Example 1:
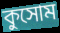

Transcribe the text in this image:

কুসোম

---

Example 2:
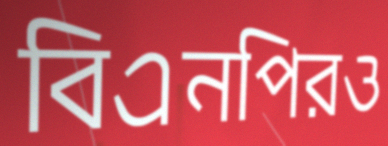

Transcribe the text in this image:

বিএনপিরও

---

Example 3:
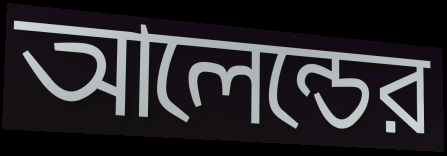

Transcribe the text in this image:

আলেন্ডের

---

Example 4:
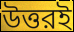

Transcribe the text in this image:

উত্তরই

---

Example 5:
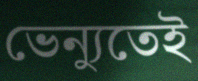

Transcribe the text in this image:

ভেন্যুতেই